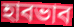
হাবভাব